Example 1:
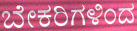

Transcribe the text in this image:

ಬೇಕರಿಗಳಿಂದ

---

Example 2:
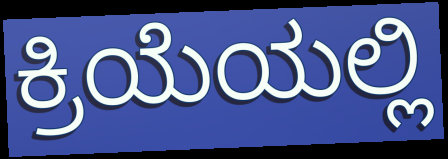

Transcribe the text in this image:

ಕ್ರಿಯೆಯಲ್ಲಿ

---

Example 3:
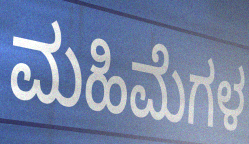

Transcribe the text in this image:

ಮಹಿಮೆಗಳ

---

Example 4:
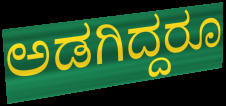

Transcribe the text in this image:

ಅಡಗಿದ್ದರೂ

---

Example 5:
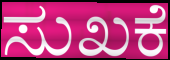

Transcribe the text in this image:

ಸುಖಕೆ